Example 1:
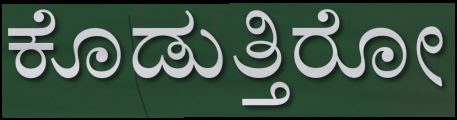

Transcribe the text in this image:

ಕೊಡುತ್ತಿರೋ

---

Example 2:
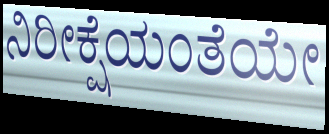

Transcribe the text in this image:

ನಿರೀಕ್ಷೆಯಂತೆಯೇ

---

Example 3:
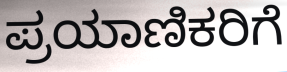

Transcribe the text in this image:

ಪ್ರಯಾಣಿಕರಿಗೆ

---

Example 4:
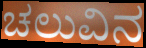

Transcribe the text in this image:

ಚಲುವಿನ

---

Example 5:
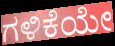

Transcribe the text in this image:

ಗಳಿಕೆಯೇ